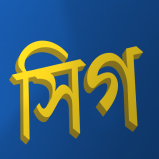
সিগ